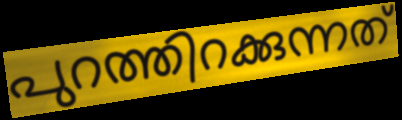
പുറത്തിറക്കുന്നത്